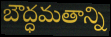
బౌద్ధమతాన్ని